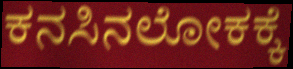
ಕನಸಿನಲೋಕಕ್ಕೆ